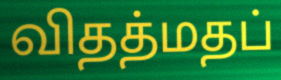
விதத்மதப்